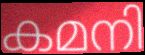
കമനി